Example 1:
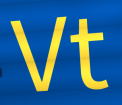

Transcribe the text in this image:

Vt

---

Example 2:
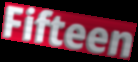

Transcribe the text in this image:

Fifteen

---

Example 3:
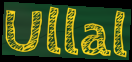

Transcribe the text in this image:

Ullal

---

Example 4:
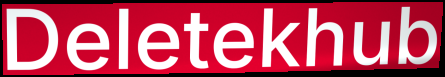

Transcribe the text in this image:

Deletekhub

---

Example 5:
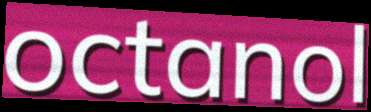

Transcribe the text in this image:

octanol